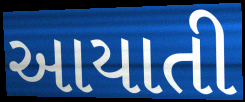
આયાતી